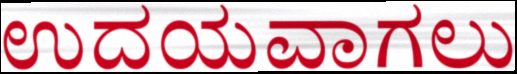
ಉದಯವಾಗಲು